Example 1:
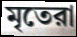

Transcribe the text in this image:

মৃতেরা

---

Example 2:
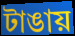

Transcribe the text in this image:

টাঙায়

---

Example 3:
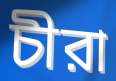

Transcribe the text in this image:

চীরা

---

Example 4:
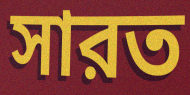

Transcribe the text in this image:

সারত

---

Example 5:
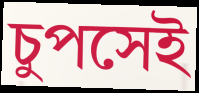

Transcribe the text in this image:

চুপসেই